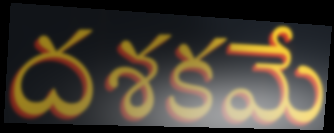
దశకమే